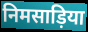
निमसाड़िया